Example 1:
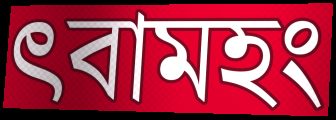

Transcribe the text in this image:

ৎবামহং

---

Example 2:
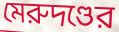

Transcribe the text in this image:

মেরুদণ্ডের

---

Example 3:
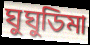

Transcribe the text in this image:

ঘুঘুডিমা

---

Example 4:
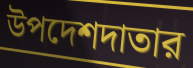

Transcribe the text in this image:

উপদেশদাতার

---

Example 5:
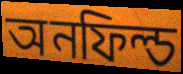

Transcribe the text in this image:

অনফিল্ড